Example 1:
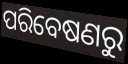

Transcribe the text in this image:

ପରିବେଷଣରୁ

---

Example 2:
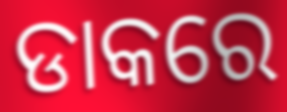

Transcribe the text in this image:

ଡାକରେ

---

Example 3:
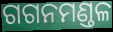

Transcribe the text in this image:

ଗଗନମଣ୍ଡଳ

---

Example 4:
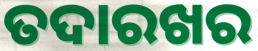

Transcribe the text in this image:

ତଦାରଖର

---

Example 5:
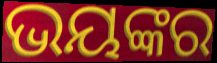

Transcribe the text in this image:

ଭୟଙ୍କର